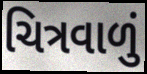
ચિત્રવાળું